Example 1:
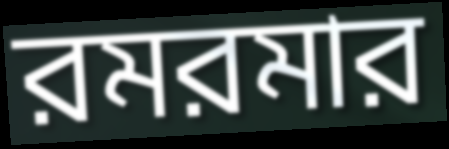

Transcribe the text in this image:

রমরমার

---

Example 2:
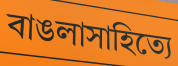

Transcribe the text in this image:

বাঙলাসাহিত্যে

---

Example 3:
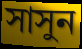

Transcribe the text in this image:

সাসুন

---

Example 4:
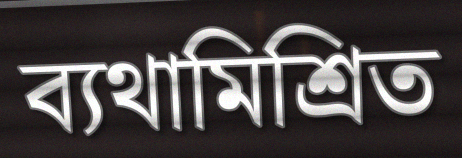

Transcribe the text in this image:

ব্যথামিশ্রিত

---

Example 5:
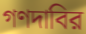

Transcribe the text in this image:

গণদাবির